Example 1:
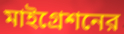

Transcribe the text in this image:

মাইগ্রেশনের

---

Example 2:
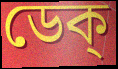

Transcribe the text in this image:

ডেক্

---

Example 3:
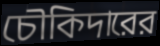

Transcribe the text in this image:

চৌকিদারের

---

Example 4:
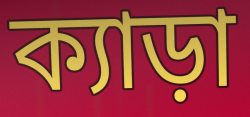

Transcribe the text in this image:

ক্যাড়া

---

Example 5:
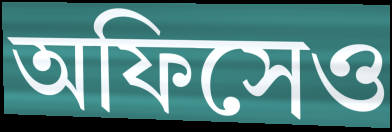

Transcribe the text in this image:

অফিসেও